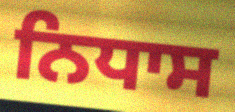
ਨਿਧਾਸ